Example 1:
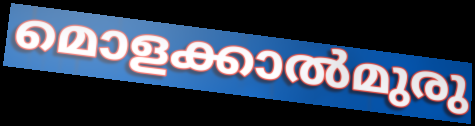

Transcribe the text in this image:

മൊളക്കാൽമുരു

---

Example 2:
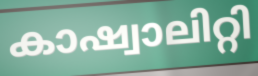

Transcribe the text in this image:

കാഷ്വാലിറ്റി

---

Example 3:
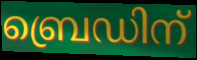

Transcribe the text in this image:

ബ്രെഡിന്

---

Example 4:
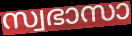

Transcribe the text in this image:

സ്വഭാസാ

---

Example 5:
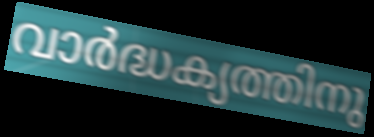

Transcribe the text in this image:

വാർദ്ധക്യത്തിനു